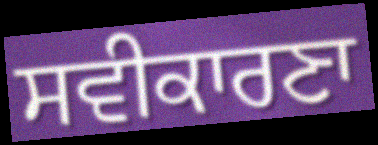
ਸਵੀਕਾਰਣਾ